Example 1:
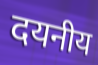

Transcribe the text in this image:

दयनीय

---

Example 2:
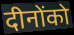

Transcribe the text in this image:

दीनोंको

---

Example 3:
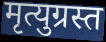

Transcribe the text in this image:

मृत्युग्रस्त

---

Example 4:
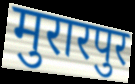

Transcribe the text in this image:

मुरारपुर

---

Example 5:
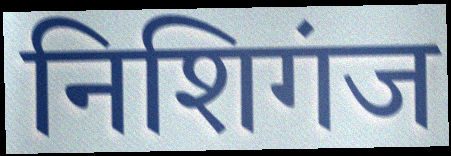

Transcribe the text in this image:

निशिगंज